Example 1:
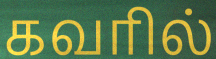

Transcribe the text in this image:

கவரில்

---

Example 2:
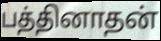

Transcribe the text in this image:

பத்தினாதன்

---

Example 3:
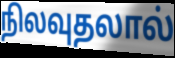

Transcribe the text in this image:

நிலவுதலால்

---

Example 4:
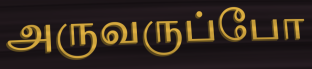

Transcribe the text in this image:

அருவருப்போ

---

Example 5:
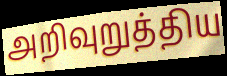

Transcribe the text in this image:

அறிவுறுத்திய